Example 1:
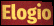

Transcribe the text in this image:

Elogio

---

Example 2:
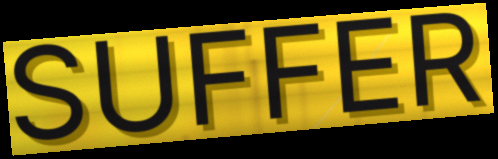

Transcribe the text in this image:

SUFFER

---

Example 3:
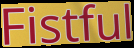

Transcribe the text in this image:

Fistful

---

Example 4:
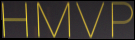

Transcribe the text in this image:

HMVP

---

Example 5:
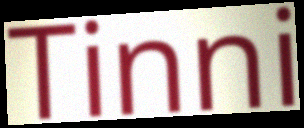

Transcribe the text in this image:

Tinni